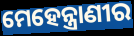
ମେହେନ୍ତ୍ରାଣୀର